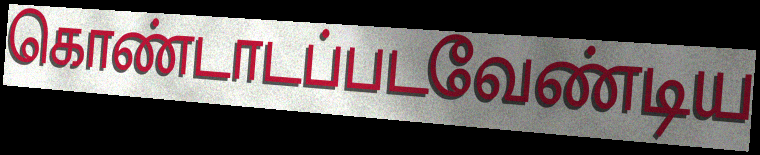
கொண்டாடப்படவேண்டிய